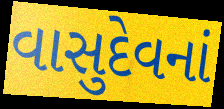
વાસુદેવનાં